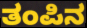
ತಂಪಿನ